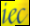
iec